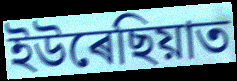
ইউৰেছিয়াত